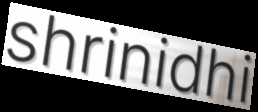
shrinidhi